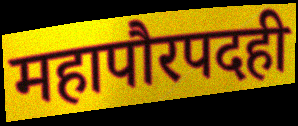
महापौरपदही